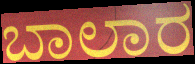
ಬಾಲಾರ